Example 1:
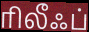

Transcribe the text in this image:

ரிலீஃப்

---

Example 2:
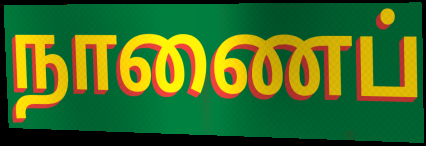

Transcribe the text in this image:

நாணைப்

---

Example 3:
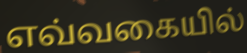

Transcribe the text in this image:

எவ்வகையில்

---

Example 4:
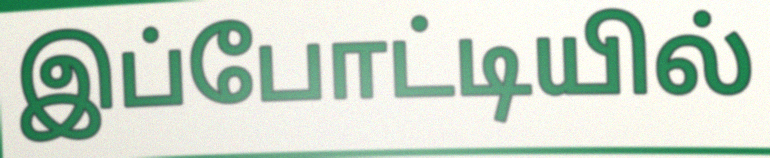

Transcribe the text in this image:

இப்போட்டியில்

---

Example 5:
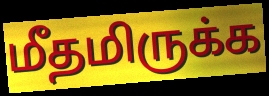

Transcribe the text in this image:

மீதமிருக்க